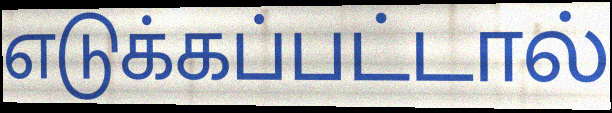
எடுக்கப்பட்டால்